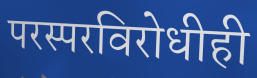
परस्परविरोधीही